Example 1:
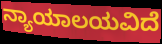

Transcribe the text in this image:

ನ್ಯಾಯಾಲಯವಿದೆ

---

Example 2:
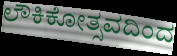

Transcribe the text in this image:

ಲೌಕಿಕೋತ್ಸವದಿಂದ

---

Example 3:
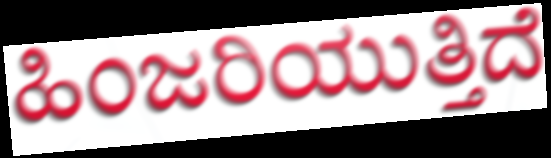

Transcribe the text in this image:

ಹಿಂಜರಿಯುತ್ತಿದೆ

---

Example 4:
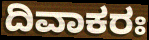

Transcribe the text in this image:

ದಿವಾಕರಃ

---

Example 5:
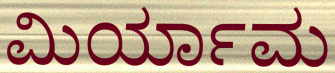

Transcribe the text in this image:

ಮಿರ್ಯಾಮ